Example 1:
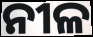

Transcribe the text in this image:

ନୀଳ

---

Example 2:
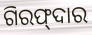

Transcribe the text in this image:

ଗିରଫ୍‍ଦାର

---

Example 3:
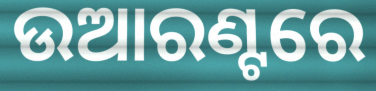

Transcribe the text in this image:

ଉଆରଣ୍ଟରେ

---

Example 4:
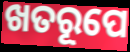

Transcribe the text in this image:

ଖତରୂପେ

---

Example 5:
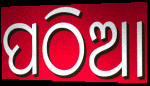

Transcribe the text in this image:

ପଠିଆ